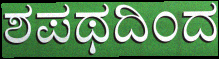
ಶಪಥದಿಂದ